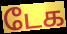
டேக